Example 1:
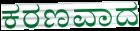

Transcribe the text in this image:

ಕರಣವಾದ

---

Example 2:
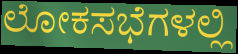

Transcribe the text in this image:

ಲೋಕಸಭೆಗಳಲ್ಲಿ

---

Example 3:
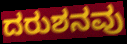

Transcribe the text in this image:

ದರುಶನವು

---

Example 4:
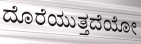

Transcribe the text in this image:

ದೊರೆಯುತ್ತದೆಯೋ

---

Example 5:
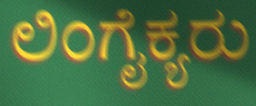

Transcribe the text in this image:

ಲಿಂಗೈಕ್ಯರು